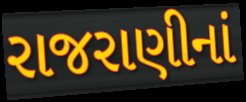
રાજરાણીનાં